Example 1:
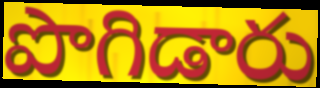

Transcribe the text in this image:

పొగిడారు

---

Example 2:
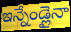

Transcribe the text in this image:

ఇన్నేండ్లైనా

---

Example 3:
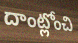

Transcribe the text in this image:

దాంట్లోంచి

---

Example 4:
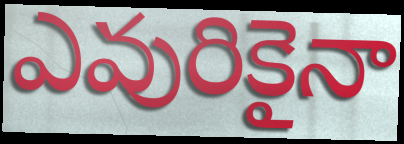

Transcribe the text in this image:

ఎవురికైనా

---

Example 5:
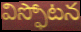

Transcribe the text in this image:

విస్ఫోటన